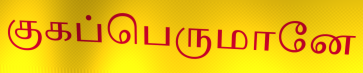
குகப்பெருமானே